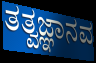
ತತ್ವಜ್ಞಾನವ